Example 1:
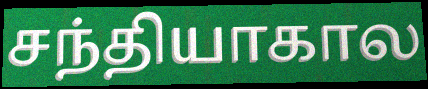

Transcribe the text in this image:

சந்தியாகால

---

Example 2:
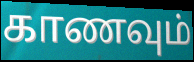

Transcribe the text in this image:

காணவும்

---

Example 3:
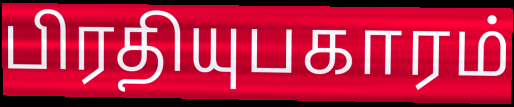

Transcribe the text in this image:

பிரதியுபகாரம்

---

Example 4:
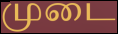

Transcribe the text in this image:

முடை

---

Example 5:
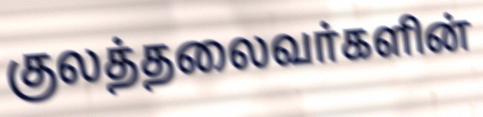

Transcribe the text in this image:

குலத்தலைவர்களின்